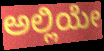
ಅಲ್ಲಿಯೇ